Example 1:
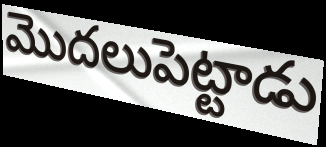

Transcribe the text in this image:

మొదలుపెట్టాడు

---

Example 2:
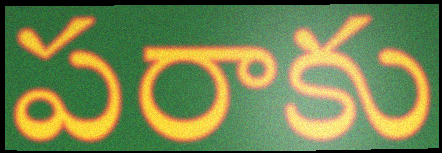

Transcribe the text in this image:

పరాకు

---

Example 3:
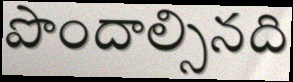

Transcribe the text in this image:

పొందాల్సినది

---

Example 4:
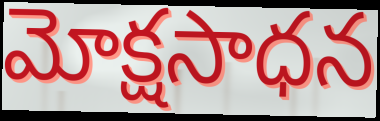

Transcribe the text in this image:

మోక్షసాధన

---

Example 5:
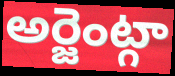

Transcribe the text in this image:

అర్జెంట్గా